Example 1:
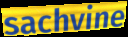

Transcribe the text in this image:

sachvine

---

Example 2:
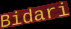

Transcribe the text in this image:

Bidari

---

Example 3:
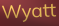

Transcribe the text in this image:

Wyatt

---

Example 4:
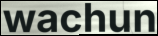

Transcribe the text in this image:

wachun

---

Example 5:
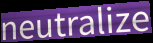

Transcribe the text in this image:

neutralize